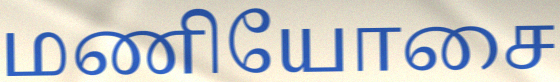
மணியோசை